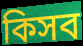
কিসব